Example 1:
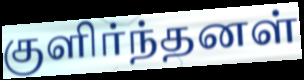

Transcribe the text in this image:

குளிர்ந்தனள்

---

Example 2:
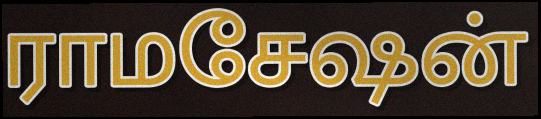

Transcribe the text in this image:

ராமசேஷன்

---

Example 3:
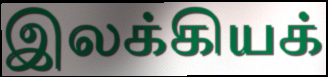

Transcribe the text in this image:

இலக்கியக்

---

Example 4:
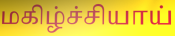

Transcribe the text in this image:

மகிழ்ச்சியாய்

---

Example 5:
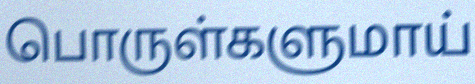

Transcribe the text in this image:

பொருள்களுமாய்